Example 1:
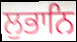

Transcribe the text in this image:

ਲੁਭਾਨਿ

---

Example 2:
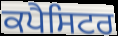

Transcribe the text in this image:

ਕਪੈਸਿਟਰ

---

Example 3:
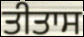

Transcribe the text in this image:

ਤੀਤਾਸ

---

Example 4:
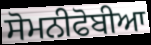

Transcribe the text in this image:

ਸੋਮਨੀਫੋਬੀਆ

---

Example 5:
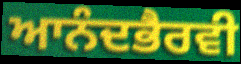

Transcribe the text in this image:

ਆਨੰਦਭੈਰਵੀ